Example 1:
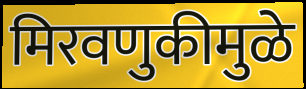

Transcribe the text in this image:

मिरवणुकीमुळे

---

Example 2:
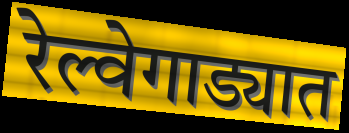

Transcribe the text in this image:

रेल्वेगाड्यात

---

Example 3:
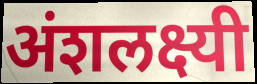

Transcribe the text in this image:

अंशलक्ष्यी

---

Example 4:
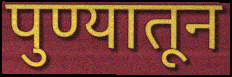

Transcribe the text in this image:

पुण्यातून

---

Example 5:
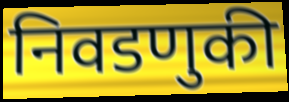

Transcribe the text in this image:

निवडणुकी